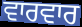
ਵਾਰਵਾਰ